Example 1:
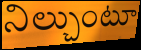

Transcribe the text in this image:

నిల్చుంటూ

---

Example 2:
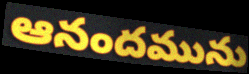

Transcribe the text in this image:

ఆనందమును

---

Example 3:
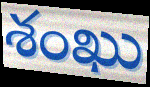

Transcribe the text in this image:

శంఖు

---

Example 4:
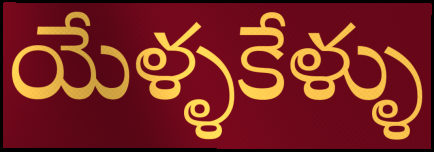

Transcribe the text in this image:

యేళ్ళకేళ్ళు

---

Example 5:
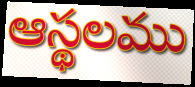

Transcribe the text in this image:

ఆస్థలము